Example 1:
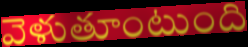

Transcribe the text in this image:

వెళుతూంటుంది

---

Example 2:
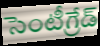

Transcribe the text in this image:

సెంటీగ్రేడ్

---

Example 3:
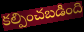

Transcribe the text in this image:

కల్పించబడింది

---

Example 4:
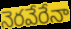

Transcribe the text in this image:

నెరవేరేనా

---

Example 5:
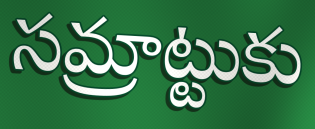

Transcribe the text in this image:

సమ్రాట్టుకు